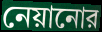
নেয়ানোর